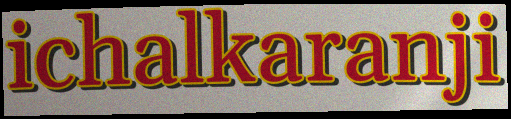
ichalkaranji